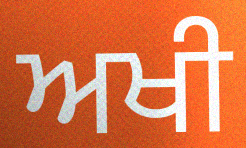
ਅਖੀ